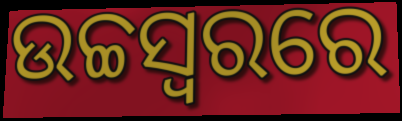
ଉଚ୍ଚସ୍ୱରରେ